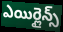
ఎయిర్లైన్స్